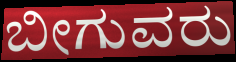
ಬೀಗುವರು